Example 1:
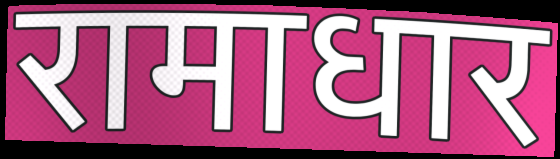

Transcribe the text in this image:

रामाधार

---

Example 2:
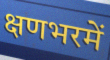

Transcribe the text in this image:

क्षणभरमें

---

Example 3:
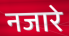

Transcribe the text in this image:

नजारे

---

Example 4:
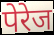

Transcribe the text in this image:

पेरेज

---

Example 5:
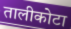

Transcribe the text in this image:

तालीकोटा